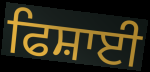
ਫਿਸ਼ਾਈ